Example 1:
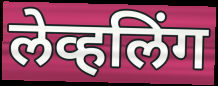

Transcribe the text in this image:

लेव्हलिंग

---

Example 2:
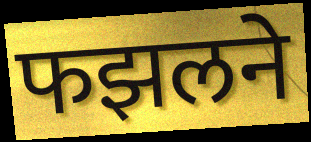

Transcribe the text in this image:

फझलने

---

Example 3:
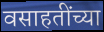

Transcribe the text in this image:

वसाहतींच्या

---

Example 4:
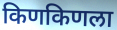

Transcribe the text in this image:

किणकिणला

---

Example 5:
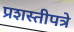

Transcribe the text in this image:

प्रशस्तीपत्रे